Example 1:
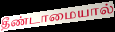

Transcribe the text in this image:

தீண்டாமையால்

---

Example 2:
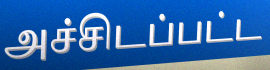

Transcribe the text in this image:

அச்சிடப்பட்ட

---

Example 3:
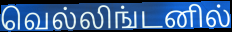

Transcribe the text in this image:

வெல்லிங்டனில்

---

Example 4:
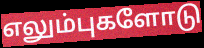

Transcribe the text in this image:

எலும்புகளோடு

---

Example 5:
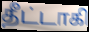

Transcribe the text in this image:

தீட்டாகி